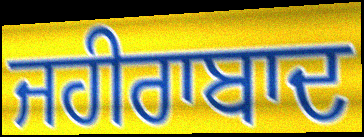
ਜਹੀਰਾਬਾਦ